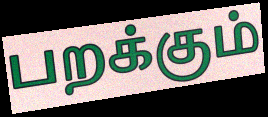
பறக்கும்